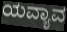
ಯವ್ಯಾವ